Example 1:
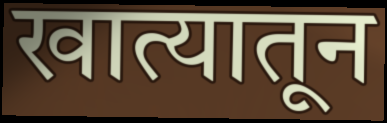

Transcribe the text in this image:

खात्यातून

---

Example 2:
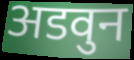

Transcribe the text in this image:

अडवुन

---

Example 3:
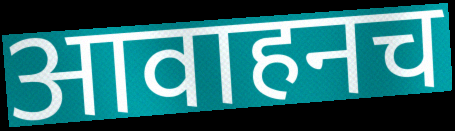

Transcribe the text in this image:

आवाहनच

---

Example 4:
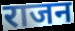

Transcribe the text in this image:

राजन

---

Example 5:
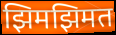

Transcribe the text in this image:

झिमझिमत